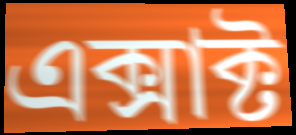
এক্সাক্ট